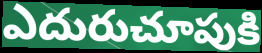
ఎదురుచూపుకి